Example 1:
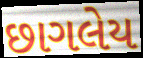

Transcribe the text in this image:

છાગલેય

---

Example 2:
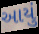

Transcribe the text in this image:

આયું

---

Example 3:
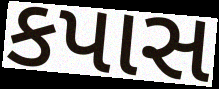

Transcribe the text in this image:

કપાસ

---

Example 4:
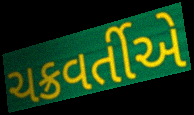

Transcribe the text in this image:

ચક્રવર્તીએ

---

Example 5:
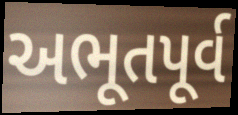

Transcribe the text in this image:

અભૂતપૂર્વ